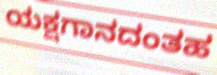
ಯಕ್ಷಗಾನದಂತಹ